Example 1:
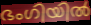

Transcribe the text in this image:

ഭംഗിയിൽ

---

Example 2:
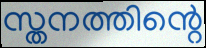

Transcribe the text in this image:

സ്തനത്തിന്റെ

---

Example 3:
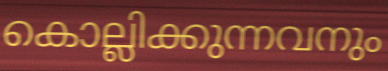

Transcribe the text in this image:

കൊല്ലിക്കുന്നവനും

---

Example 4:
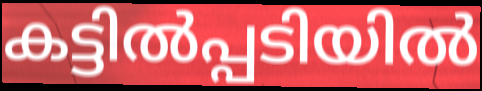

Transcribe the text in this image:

കട്ടിൽപ്പടിയിൽ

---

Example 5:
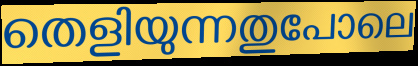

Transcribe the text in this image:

തെളിയുന്നതുപോലെ